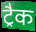
ट्रैक